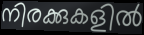
നിരക്കുകളിൽ